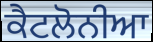
ਕੈਟਲੋਨੀਆ